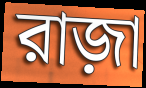
রাজ়া